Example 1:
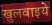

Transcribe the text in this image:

खुलवाइये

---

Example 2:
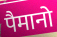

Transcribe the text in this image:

पैमानो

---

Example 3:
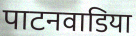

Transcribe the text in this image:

पाटनवाडिया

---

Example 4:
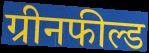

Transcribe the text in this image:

ग्रीनफील्‍ड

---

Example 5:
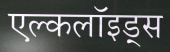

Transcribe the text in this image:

एल्कलॉइड्स